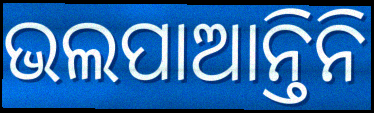
ଭଲପାଆନ୍ତିନି